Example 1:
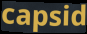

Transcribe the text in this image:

capsid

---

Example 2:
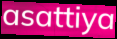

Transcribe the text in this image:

asattiya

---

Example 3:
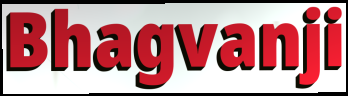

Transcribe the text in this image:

Bhagvanji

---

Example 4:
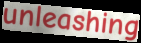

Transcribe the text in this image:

unleashing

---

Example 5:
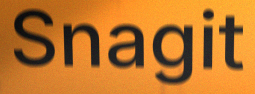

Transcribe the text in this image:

Snagit